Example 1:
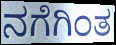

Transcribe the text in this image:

ನಗೆಗಿಂತ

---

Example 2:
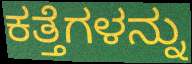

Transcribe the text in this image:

ಕತ್ತೆಗಳನ್ನು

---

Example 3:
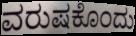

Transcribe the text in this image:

ವರುಷಕೊಂದು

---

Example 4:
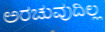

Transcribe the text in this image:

ಅರಚುವುದಿಲ್ಲ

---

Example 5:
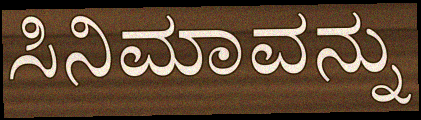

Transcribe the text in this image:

ಸಿನಿಮಾವನ್ನು